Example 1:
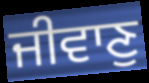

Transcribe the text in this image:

ਜੀਵਾਣੁ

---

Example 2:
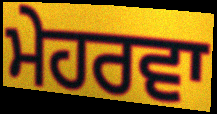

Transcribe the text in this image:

ਮੇਹਰਵਾ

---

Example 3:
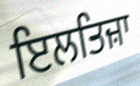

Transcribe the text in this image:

ਇਲਤਿਜ਼ਾ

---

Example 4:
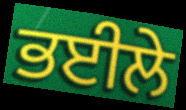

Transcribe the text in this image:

ਭਈਲੇ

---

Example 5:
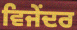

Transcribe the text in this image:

ਵਿਜੇਂਦਰ